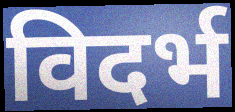
विदर्भ